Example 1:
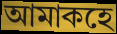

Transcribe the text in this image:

আমাকহে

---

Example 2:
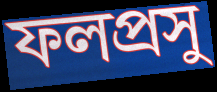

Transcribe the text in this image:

ফলপ্ৰসু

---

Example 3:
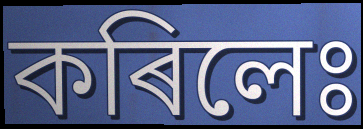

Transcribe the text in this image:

কৰিলেঃ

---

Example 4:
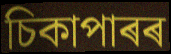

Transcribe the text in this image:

চিকাপাৰৰ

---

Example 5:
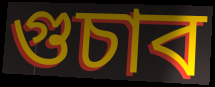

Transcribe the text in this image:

গুচাব